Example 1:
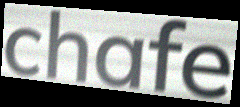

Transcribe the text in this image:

chafe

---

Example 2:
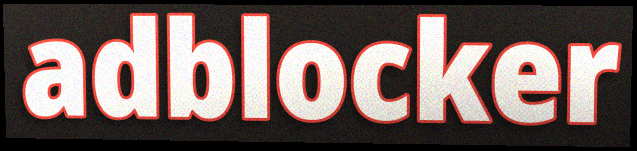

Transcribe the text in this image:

adblocker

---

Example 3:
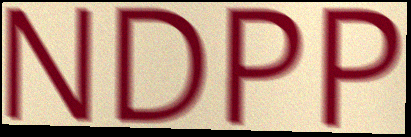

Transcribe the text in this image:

NDPP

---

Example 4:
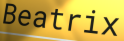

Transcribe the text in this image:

Beatrix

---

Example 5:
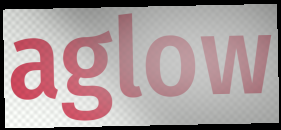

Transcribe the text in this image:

aglow